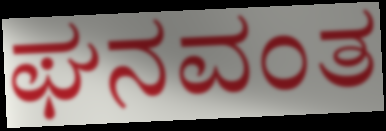
ಘನವಂತ